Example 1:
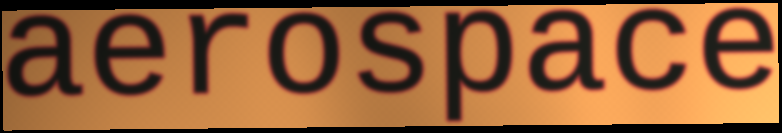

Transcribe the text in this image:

aerospace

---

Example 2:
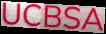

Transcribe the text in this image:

UCBSA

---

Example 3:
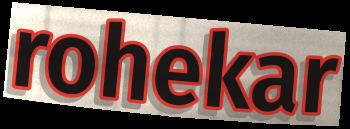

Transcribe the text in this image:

rohekar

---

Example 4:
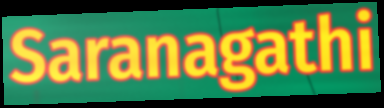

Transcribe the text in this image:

Saranagathi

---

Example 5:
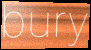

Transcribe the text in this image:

bury